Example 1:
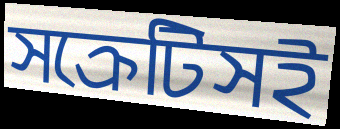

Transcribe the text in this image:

সক্রেটিসই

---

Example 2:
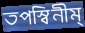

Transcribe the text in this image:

তপস্বিনীম্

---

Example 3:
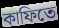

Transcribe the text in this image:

কাফিতে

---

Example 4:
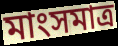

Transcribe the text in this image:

মাংসমাত্র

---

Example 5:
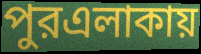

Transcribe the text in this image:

পুরএলাকায়